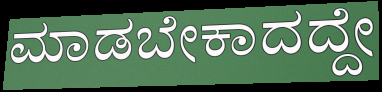
ಮಾಡಬೇಕಾದದ್ದೇ